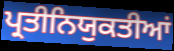
ਪ੍ਰਤੀਨਿਯੁਕਤੀਆਂ